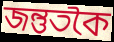
জন্তুতকৈ